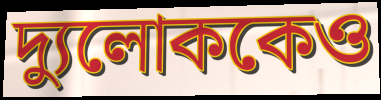
দ্যুলোককেও